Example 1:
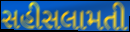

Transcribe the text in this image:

સહીસલામતી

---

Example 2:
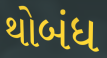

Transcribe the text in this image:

થોબંધ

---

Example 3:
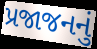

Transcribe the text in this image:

પ્રજાજનનું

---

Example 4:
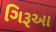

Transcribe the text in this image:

ગિરૂઆ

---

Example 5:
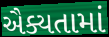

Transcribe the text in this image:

ઐક્યતામાં